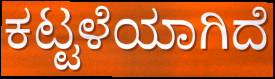
ಕಟ್ಟಳೆಯಾಗಿದೆ